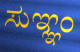
ಸುಞ್ಞಂ